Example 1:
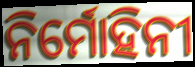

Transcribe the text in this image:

ନିର୍ମୋହିନୀ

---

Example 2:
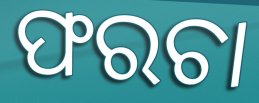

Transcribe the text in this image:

ଫରଚା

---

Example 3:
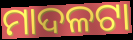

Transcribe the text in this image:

ମାଦଳଟା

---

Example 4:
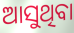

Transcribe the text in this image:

ଆସୁଥିବା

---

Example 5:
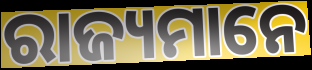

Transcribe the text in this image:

ରାଜ୍ୟମାନେ